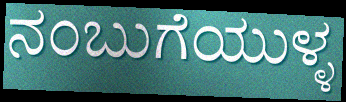
ನಂಬುಗೆಯುಳ್ಳ